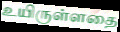
உயிருள்ளதை